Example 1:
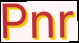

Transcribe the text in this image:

Pnr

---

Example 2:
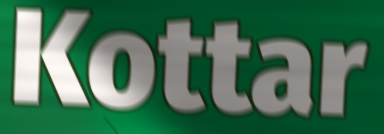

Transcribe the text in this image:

Kottar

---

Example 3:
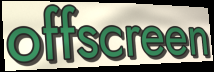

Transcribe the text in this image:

offscreen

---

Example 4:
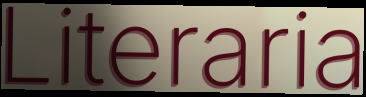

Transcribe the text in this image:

Literaria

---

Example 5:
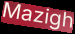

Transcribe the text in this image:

Mazigh